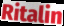
Ritalin